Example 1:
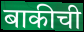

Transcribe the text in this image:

बाकीची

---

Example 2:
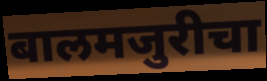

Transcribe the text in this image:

बालमजुरीचा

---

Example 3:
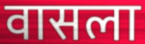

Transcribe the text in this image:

वासला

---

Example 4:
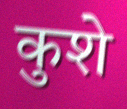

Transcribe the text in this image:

कुशे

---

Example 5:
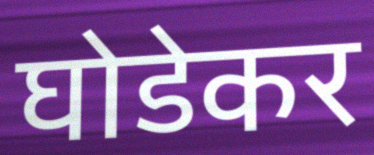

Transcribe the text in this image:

घोडेकर